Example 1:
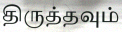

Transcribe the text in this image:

திருத்தவும்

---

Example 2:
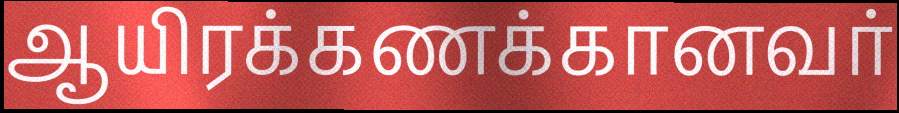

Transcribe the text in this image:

ஆயிரக்கணக்கானவர்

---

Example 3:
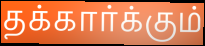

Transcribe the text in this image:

தக்கார்க்கும்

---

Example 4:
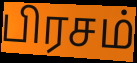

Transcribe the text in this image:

பிரசம்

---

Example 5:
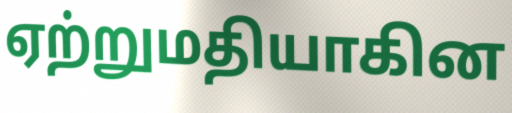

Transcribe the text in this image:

ஏற்றுமதியாகின